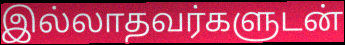
இல்லாதவர்களுடன்